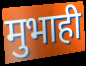
मुभाही